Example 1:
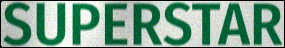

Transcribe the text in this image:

SUPERSTAR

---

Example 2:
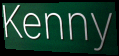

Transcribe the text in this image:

Kenny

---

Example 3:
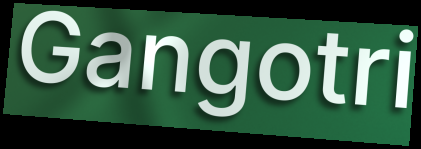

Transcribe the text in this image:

Gangotri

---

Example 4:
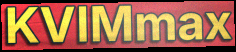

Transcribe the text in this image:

KVIMmax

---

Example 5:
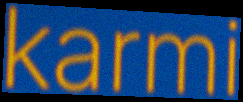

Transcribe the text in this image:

karmi